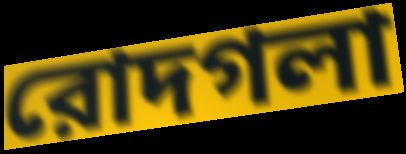
রোদগলা